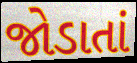
જોડાતાં